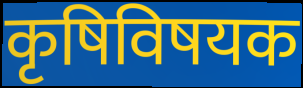
कृषिविषयक